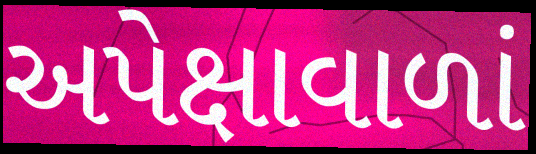
અપેક્ષાવાળાં